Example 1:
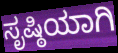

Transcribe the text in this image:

ಸೃಷ್ಠಿಯಾಗಿ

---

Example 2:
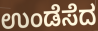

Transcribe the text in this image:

ಉಂಡೆಸೆದ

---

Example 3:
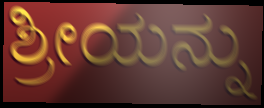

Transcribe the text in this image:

ಶ್ರೀಯನ್ನು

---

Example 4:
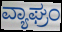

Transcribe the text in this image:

ವ್ಯಾಘ್ರಂ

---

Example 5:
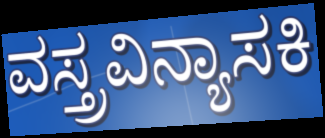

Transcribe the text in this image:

ವಸ್ತ್ರವಿನ್ಯಾಸಕಿ